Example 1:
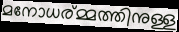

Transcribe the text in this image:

മനോധര്മ്മത്തിനുള്ള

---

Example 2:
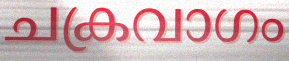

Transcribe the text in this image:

ചക്രവാഗം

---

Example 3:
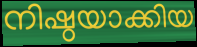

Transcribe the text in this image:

നിഷ്ഠയാക്കിയ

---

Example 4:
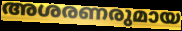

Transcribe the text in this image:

അശരണരുമായ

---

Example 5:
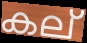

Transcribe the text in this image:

കല്